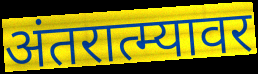
अंतरात्म्यावर